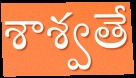
శాశ్వతే